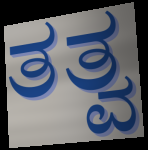
ತತ್ವ